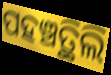
ପହଞ୍ଚତ୍ଥିଲି